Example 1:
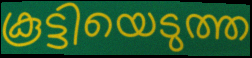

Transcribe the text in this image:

കൂട്ടിയെടുത്ത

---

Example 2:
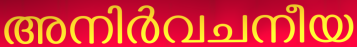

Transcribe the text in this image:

അനിർവചനീയ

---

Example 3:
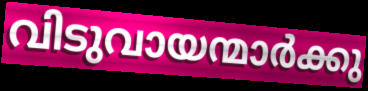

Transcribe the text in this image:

വിടുവായന്മാർക്കു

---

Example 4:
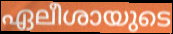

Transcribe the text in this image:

ഏലീശായുടെ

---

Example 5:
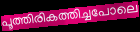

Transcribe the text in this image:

പൂത്തിരികത്തിച്ചപോലെ